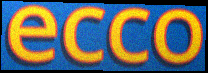
ecco